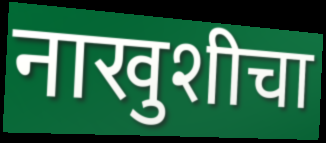
नाखुशीचा